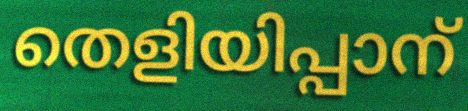
തെളിയിപ്പാന്